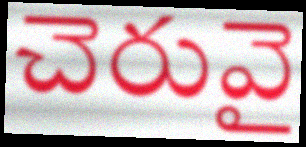
చెరువై